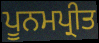
ਪੂਨਮਪ੍ਰੀਤ